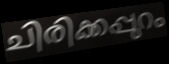
ചിരിക്കപ്പുറം